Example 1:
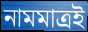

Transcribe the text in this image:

নামমাত্রই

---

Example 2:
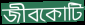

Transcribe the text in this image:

জীবকোটি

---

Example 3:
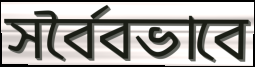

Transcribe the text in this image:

সর্বৈবভাবে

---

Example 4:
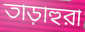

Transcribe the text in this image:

তাড়াহুরা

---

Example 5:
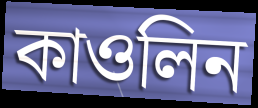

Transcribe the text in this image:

কাওলিন